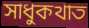
সাধুকথাত